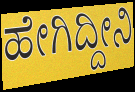
ಹೇಗಿದ್ದೀನಿ